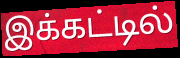
இக்கட்டில்